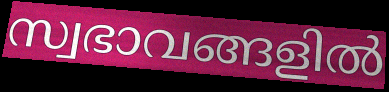
സ്വഭാവങ്ങളിൽ